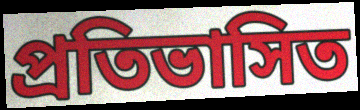
প্রতিভাসিত